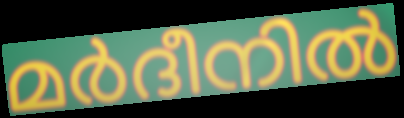
മർദീനിൽ